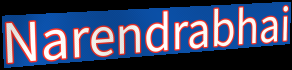
Narendrabhai